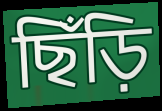
ছিঁড়ি